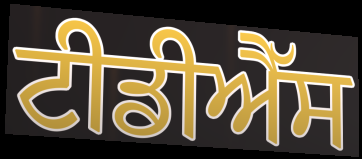
ਟੀਡੀਐੱਸ